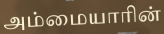
அம்மையாரின்